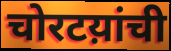
चोरटय़ांची